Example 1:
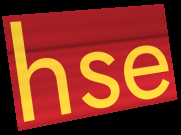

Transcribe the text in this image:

hse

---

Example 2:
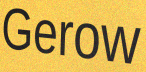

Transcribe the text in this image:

Gerow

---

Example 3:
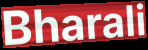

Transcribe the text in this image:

Bharali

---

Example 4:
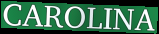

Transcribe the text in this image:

CAROLINA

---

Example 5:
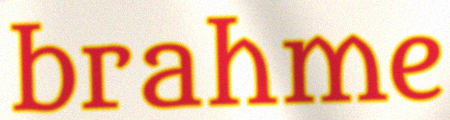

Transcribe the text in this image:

brahme